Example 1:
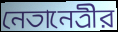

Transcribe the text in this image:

নেতানেত্রীর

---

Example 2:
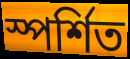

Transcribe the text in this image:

স্পর্শিত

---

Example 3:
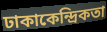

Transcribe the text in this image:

ঢাকাকেন্দ্রিকতা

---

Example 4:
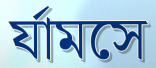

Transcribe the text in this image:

র্যামসে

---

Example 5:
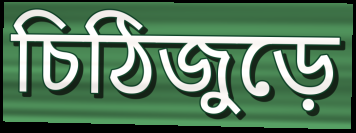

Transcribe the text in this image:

চিঠিজুড়ে